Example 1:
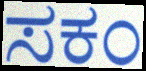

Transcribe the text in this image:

ಸಕಂ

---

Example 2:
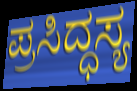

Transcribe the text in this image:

ಪ್ರಸಿದ್ಧಸ್ಯ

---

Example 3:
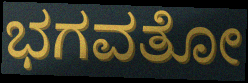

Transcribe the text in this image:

ಭಗವತೋ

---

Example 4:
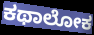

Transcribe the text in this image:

ಕಥಾಲೋಕ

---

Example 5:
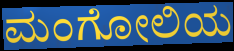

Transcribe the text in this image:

ಮಂಗೋಲಿಯ